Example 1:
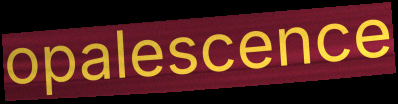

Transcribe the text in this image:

opalescence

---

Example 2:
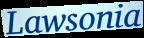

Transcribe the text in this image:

Lawsonia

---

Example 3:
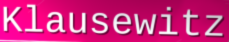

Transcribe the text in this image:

Klausewitz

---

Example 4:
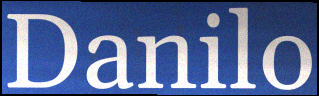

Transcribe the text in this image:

Danilo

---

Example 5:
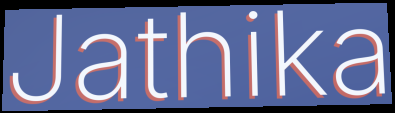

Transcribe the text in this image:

Jathika